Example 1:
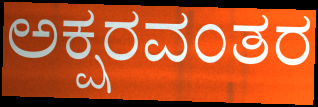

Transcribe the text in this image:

ಅಕ್ಷರವಂತರ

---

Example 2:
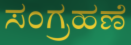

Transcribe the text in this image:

ಸಂಗ್ರಹಣೆ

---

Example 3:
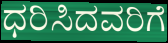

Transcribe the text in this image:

ಧರಿಸಿದವರಿಗೆ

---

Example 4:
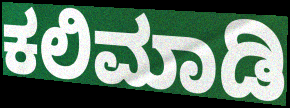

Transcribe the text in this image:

ಕಲಿಮಾಡಿ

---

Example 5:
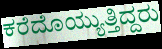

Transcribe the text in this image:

ಕರೆದೊಯ್ಯುತ್ತಿದ್ದರು